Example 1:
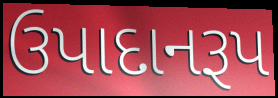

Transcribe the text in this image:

ઉપાદાનરૂપ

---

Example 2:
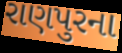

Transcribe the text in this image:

રાણપુરના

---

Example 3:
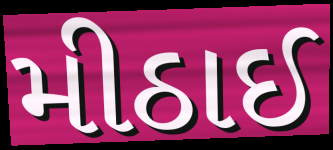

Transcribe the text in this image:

મીઠાઈ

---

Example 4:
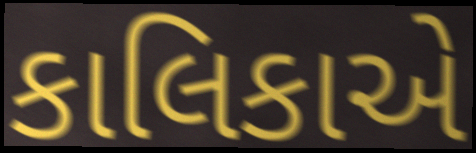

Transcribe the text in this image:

કાલિકાએ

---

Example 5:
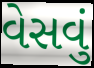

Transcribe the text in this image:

વેસવું